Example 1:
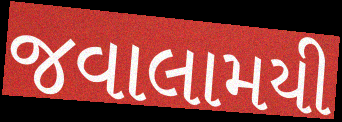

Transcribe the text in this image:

જવાલામયી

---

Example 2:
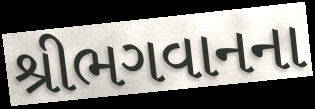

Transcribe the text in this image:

શ્રીભગવાનના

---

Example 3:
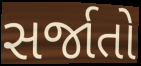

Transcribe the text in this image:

સર્જાતો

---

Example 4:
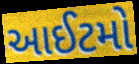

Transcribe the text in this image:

આઈટમો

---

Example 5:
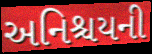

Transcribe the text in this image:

અનિશ્ચયની